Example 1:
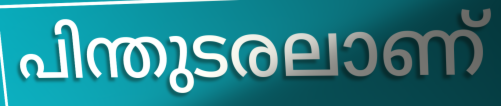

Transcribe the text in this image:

പിന്തുടരലാണ്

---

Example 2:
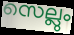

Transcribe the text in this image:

സെല്ലും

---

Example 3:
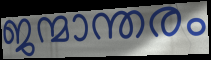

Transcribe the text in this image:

ജന്മാന്തരം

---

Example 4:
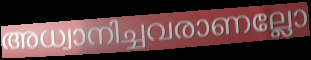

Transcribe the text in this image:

അധ്വാനിച്ചവരാണല്ലോ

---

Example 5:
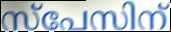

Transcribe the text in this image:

സ്പേസിന്